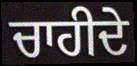
ਚਾਹੀਦੇ